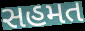
સહમત